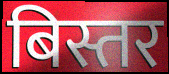
बिस्तर